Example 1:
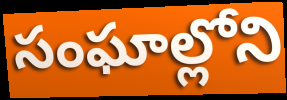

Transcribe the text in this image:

సంఘాల్లోని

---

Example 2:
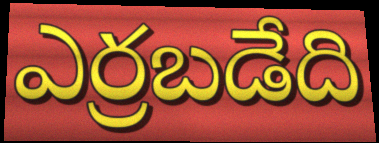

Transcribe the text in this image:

ఎర్రబడేది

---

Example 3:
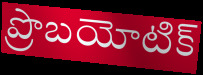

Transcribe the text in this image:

ప్రొబయోటిక్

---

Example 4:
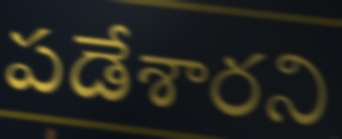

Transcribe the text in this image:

పడేశారని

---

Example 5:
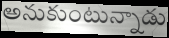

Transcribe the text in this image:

అనుకుంటున్నాడు